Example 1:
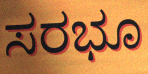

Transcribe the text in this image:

ಸರಭೂ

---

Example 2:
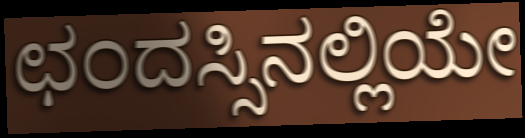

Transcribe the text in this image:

ಛಂದಸ್ಸಿನಲ್ಲಿಯೇ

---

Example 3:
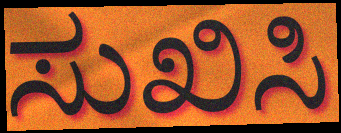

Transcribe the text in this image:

ಸುಖಿಸಿ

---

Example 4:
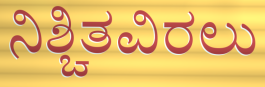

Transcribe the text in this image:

ನಿಶ್ಚಿತವಿರಲು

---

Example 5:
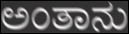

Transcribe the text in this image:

ಅಂತಾನು